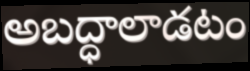
అబద్ధాలాడటం